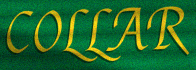
COLLAR